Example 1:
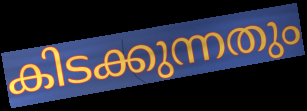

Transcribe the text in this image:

കിടക്കുന്നതും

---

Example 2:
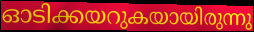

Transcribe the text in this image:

ഓടിക്കയറുകയായിരുന്നു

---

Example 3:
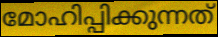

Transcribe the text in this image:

മോഹിപ്പിക്കുന്നത്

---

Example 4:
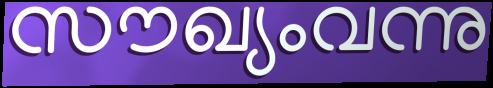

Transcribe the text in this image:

സൗഖ്യംവന്നു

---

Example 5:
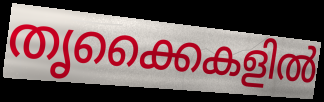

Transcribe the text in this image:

തൃക്കൈകളിൽ